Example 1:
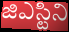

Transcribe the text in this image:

జిఎస్టిని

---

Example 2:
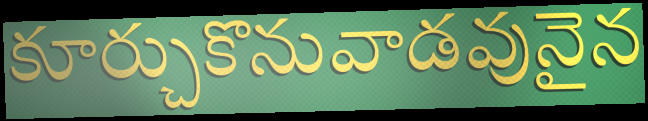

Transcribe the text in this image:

కూర్చుకొనువాడవునైన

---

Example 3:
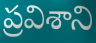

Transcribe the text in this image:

ప్రవిశాని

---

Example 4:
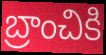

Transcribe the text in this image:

బ్రాంచికి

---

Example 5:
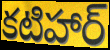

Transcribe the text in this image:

కటిహార్